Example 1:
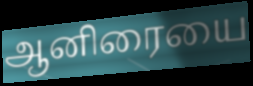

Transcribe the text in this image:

ஆனிரையை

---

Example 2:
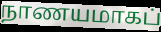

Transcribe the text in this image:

நாணயமாகப்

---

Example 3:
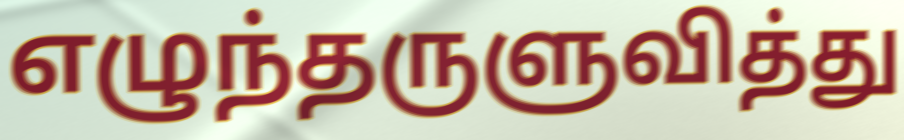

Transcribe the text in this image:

எழுந்தருளுவித்து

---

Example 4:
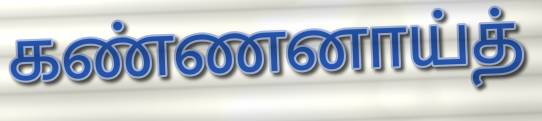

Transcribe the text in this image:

கண்ணனாய்த்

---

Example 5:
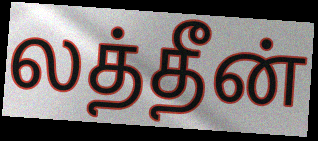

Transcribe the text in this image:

லத்தீன்